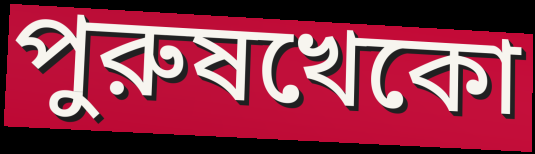
পুরুষখেকো